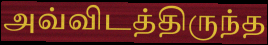
அவ்விடத்திருந்த